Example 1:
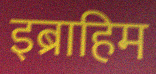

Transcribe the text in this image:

इब्राहिम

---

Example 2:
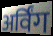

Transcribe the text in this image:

अर्विंग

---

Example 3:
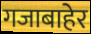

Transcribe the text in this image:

गजाबाहेर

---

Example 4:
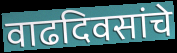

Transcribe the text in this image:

वाढदिवसांचे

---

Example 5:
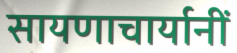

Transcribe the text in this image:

सायणाचार्यानीं